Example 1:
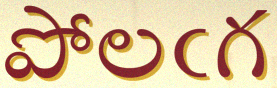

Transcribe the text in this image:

పోలఁగ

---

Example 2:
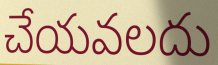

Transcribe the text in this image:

చేయవలదు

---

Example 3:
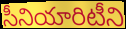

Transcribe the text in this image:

సీనియారిటీని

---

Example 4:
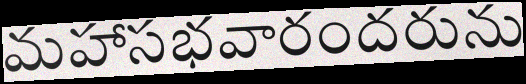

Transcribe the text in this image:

మహాసభవారందరును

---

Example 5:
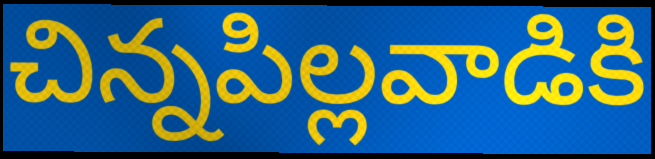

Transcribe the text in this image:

చిన్నపిల్లవాడికి